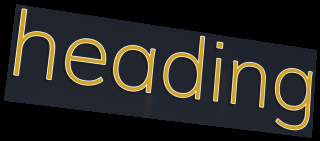
heading